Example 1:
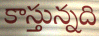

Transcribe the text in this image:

కాస్తున్నది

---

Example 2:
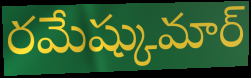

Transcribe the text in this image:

రమేష్కుమార్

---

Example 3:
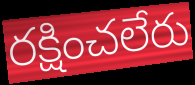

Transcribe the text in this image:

రక్షించలేరు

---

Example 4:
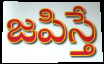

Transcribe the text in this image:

జపిస్తే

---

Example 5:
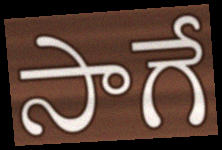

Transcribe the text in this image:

సాగే